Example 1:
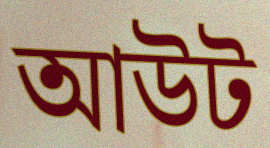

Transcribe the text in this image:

আউট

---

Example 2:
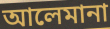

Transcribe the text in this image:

আলেমানা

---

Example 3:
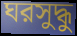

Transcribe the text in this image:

ঘরসুদ্ধু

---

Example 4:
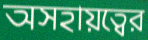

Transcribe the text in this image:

অসহায়ত্বের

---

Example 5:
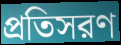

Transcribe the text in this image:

প্রতিসরণ